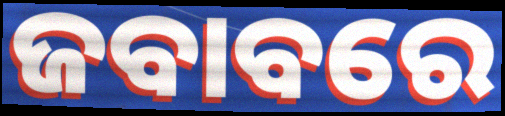
ଜବାବରେ